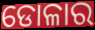
ଡୋଳାର